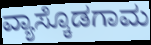
ವ್ಯಾಸ್ಕೊಡಗಾಮ